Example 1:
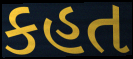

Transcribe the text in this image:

કહત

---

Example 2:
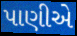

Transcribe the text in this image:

પાણીએ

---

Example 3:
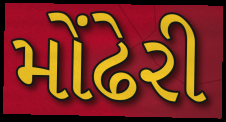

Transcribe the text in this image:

મોંઢેરી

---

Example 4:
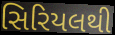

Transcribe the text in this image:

સિરિયલથી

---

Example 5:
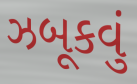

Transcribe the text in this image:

ઝબૂકવું